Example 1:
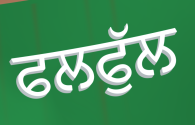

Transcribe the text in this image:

ਫਲਫੁੱਲ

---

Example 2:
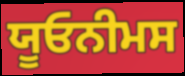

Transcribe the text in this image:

ਯੂਓਨੀਮਸ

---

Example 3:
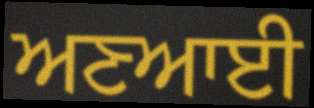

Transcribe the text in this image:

ਅਣਆਈ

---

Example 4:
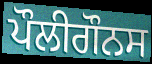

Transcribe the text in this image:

ਪੌਲੀਗੌਨਸ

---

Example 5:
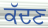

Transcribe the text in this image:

ਕੱਦਣ